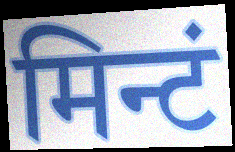
मिन्टं